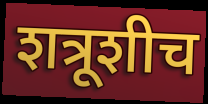
शत्रूशीच